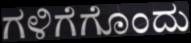
ಗಳಿಗೆಗೊಂದು